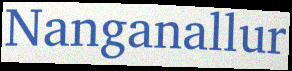
Nanganallur